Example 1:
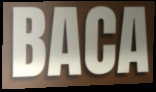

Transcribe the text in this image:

BACA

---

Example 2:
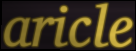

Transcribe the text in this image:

aricle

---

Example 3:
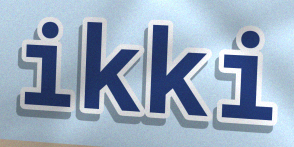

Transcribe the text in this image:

ikki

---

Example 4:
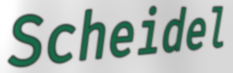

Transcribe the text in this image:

Scheidel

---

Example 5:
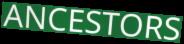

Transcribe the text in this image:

ANCESTORS